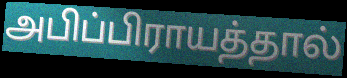
அபிப்பிராயத்தால்